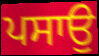
ਪਸਾਉ